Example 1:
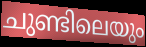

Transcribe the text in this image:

ചുണ്ടിലെയും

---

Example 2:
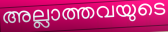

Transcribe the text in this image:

അല്ലാത്തവയുടെ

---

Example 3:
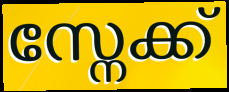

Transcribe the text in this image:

സ്നേക്ക്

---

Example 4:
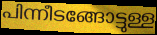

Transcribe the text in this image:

പിന്നീടങ്ങോട്ടുള്ള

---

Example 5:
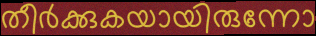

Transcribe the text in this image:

തീർക്കുകയായിരുന്നോ